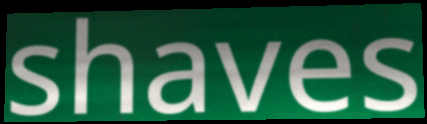
shaves